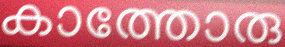
കാത്തോരു